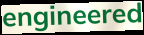
engineered